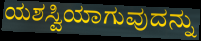
ಯಶಸ್ವಿಯಾಗುವುದನ್ನು